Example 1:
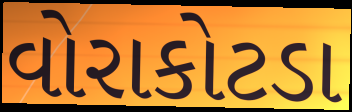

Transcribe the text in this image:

વોરાકોટડા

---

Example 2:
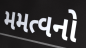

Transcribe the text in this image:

મમત્વનો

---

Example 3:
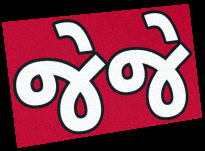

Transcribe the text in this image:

જેજે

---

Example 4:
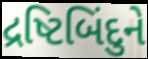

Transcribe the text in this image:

દ્રષ્ટિબિંદુને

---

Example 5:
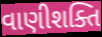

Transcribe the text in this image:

વાણીશક્તિ